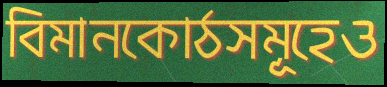
বিমানকোঠসমূহেও